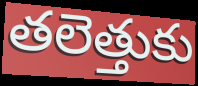
తలెత్తుకు